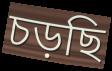
চড়ছি